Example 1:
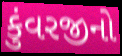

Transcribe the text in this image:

કુંવરજીનો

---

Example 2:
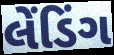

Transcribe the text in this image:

લેંડિંગ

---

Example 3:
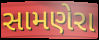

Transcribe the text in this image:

સામણેરા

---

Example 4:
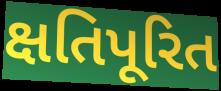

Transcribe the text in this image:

ક્ષતિપૂરિત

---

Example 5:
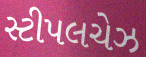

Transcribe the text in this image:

સ્ટીપલચેઝ